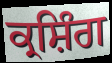
ਕ੍ਰਸ਼ਿੰਗ